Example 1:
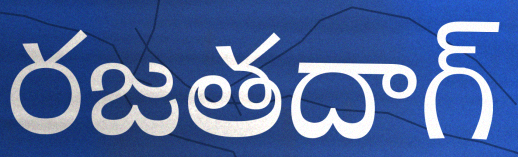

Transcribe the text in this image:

రజతదాగ్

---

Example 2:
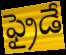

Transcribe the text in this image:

ఫ్రైడే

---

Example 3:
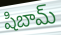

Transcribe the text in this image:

షిబామ్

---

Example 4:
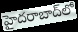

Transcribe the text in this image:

హైదరాబాద్‌లో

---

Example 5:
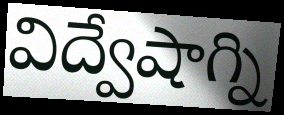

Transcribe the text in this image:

విద్వేషాగ్ని